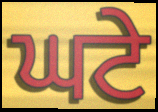
ਘਟੇ